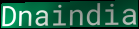
Dnaindia